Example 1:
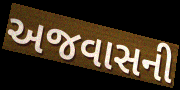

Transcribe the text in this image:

અજવાસની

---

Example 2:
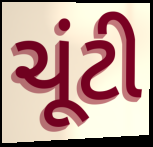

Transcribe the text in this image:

ચૂંટી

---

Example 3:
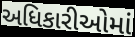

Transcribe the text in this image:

અધિકારીઓમાં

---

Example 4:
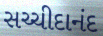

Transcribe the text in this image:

સચ્ચીદાનંદ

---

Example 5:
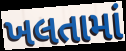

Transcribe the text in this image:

ખલતામાં